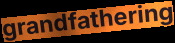
grandfathering